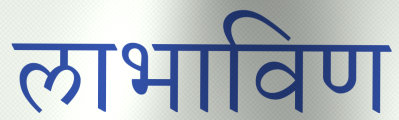
लाभाविण